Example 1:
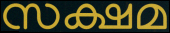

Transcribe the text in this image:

സക്ഷമ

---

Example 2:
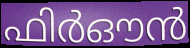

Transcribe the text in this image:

ഫിർഔൻ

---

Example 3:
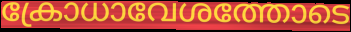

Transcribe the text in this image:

ക്രോധാവേശത്തോടെ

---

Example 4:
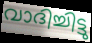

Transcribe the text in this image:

വാദിച്ചിട്ടു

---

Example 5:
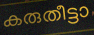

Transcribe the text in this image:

കരുതീട്ടാ